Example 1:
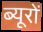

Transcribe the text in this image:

ब्यूरों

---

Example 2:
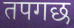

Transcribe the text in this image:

तपगछ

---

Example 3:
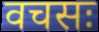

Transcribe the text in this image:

वचसः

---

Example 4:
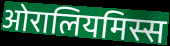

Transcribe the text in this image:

ओरालियमिस्स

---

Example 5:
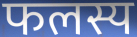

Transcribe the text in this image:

फलस्य